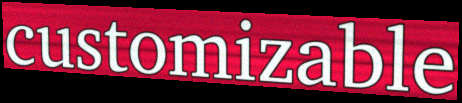
customizable